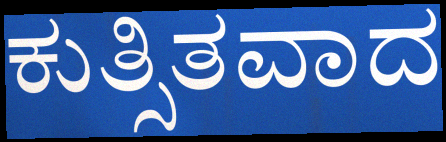
ಕುತ್ಸಿತವಾದ